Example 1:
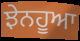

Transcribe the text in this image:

ਝੇਨਹੂਆ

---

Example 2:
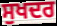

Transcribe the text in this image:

ਸੁਖਦਰ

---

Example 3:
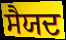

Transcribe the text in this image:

ਸੈਯਦ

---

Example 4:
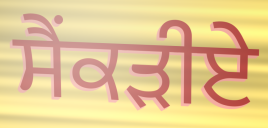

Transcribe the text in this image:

ਸੈਂਕੜੀਏ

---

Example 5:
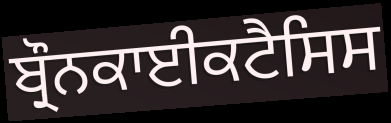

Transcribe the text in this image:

ਬ੍ਰੌਨਕਾਈਕਟੈਸਿਸ